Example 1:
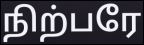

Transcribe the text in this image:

நிற்பரே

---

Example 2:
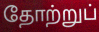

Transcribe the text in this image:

தோற்றுப்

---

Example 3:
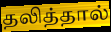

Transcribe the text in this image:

தலித்தால்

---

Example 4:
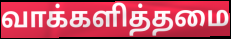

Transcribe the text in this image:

வாக்களித்தமை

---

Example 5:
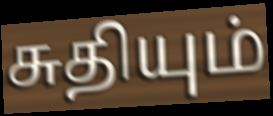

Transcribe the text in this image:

சுதியும்